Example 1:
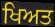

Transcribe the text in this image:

ਖਿਅਤ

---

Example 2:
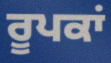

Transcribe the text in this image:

ਰੂਪਕਾਂ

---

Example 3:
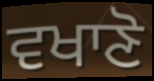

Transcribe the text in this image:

ਵਖਾਣੋ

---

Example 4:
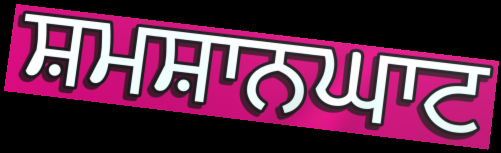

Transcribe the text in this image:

ਸ਼ਮਸ਼ਾਨਘਾਟ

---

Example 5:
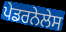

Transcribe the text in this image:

ਪੇਡਰਨੇਲੇਸ